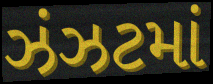
ઝંઝટમાં